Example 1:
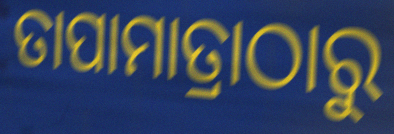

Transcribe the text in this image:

ତାପାମାତ୍ରାଠାରୁ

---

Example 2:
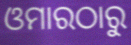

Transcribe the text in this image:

ଓମାରଠାରୁ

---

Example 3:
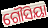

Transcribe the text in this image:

ଗୌସିୟା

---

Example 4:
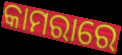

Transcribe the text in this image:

କାମରାରେ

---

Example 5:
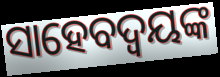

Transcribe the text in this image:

ସାହେବଦ୍ୱୟଙ୍କ